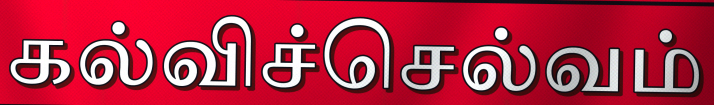
கல்விச்செல்வம்